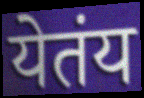
येतंय